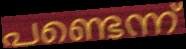
പണ്ടെന്ന്